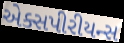
એક્સપીરીયન્સ